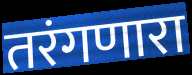
तरंगणारा